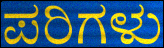
ಪರಿಗಳು